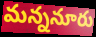
మన్ననూరు